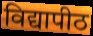
विद्यापीठ